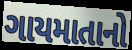
ગાયમાતાનો